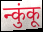
न्कुंकू